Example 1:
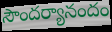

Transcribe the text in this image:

సౌందర్యానందం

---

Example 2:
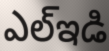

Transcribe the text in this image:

ఎల్ఇడి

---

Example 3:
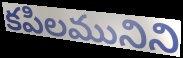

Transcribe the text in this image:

కపిలమునిని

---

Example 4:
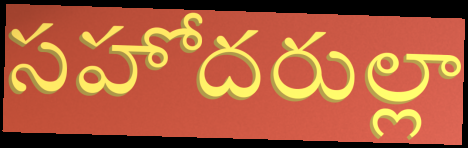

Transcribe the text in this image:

సహోదరుల్లా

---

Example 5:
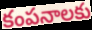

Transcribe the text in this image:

కంపనాలకు